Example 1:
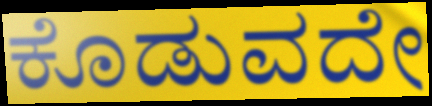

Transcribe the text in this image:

ಕೊಡುವದೇ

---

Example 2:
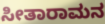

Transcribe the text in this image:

ಸೀತಾರಾಮನ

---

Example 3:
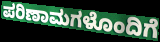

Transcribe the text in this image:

ಪರಿಣಾಮಗಳೊಂದಿಗೆ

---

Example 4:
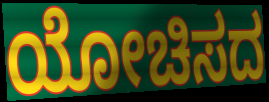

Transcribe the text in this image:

ಯೋಚಿಸದ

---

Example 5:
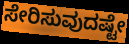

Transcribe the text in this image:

ಸೇರಿಸುವುದಷ್ಟೇ